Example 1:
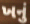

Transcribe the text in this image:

ખનું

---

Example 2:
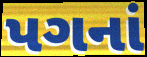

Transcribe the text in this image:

પગનાં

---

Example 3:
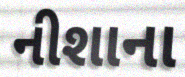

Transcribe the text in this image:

નીશાના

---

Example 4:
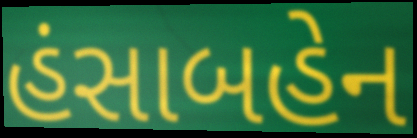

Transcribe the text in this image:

હંસાબહેન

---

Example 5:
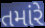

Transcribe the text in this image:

તમાંરે